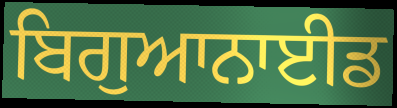
ਬਿਗੁਆਨਾਈਡ